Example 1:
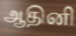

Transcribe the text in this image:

ஆதினி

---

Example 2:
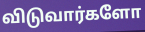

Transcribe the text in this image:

விடுவார்களோ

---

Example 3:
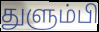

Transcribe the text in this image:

துளும்பி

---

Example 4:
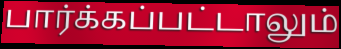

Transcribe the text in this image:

பார்க்கப்பட்டாலும்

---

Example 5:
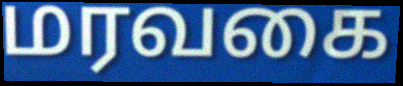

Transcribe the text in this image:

மரவகை